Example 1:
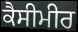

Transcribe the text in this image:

ਕੈਸੀਮੀਰ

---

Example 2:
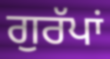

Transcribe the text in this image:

ਗੁਰੱਪਾਂ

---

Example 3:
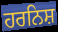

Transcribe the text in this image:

ਹਰਨਿਸ਼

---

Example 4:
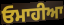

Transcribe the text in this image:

ਓਮਾਹੀਆ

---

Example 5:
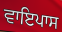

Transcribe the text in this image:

ਵਾਇਪਾਸ